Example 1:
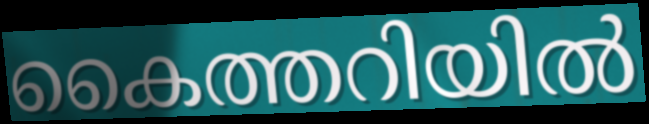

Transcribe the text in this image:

കൈത്തറിയിൽ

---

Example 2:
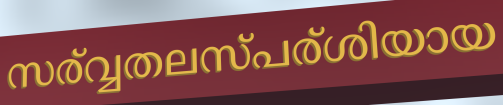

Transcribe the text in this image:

സര്വ്വതലസ്പര്ശിയായ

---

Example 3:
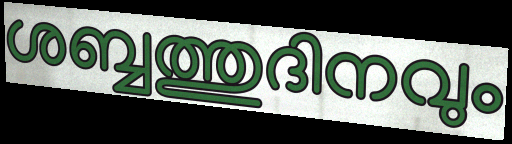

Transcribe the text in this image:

ശബ്ബത്തുദിനവും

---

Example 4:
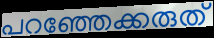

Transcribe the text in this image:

പറഞ്ഞേക്കരുത്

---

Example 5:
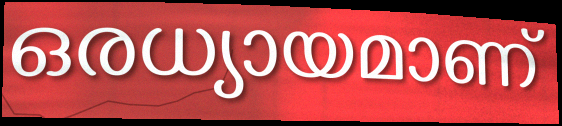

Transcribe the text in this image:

ഒരധ്യായമാണ്